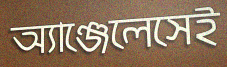
অ্যাঞ্জেলেসেই